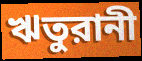
ঋতুরানী